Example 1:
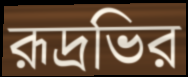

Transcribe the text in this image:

রূদ্রভির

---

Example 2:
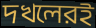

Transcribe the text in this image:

দখলেরই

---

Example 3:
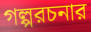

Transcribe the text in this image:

গল্পরচনার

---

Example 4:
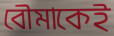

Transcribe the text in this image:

বৌমাকেই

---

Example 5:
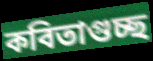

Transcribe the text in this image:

কবিতাগুচ্ছ